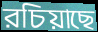
রচিয়াছে